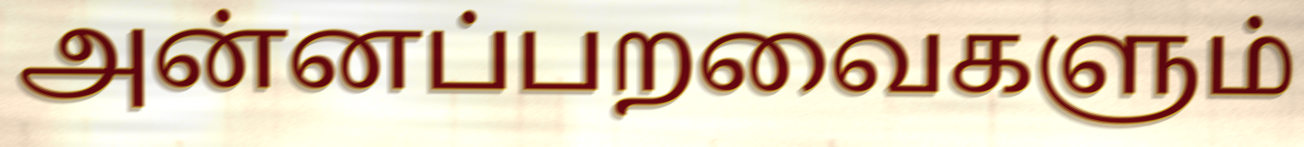
அன்னப்பறவைகளும்